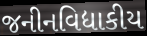
જનીનવિદ્યાકીય